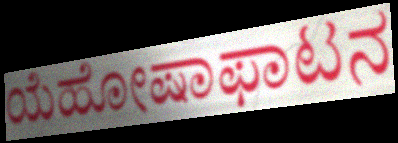
ಯೆಹೋಷಾಫಾಟನ